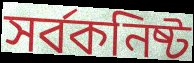
সর্বকনিষ্ট